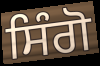
ਸਿੰਗੋ